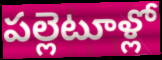
పల్లెటూళ్లో